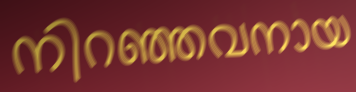
നിറഞ്ഞവനായ